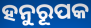
ହନୁରୂପକ